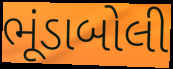
ભૂંડાબોલી